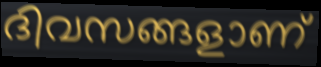
ദിവസങ്ങളാണ്